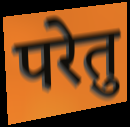
परेतु